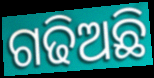
ଗଢିଅଛି